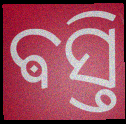
ଵସ୍ତି